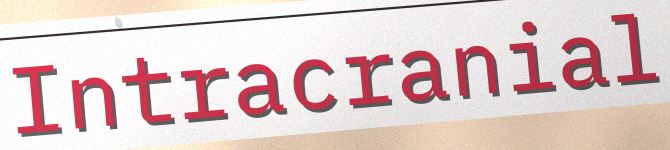
Intracranial